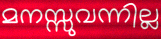
മനസ്സുവന്നില്ല